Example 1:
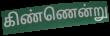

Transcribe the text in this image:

கிண்ணென்று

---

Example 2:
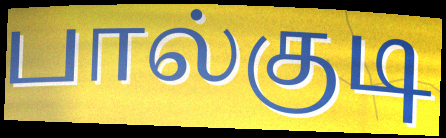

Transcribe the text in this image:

பால்குடி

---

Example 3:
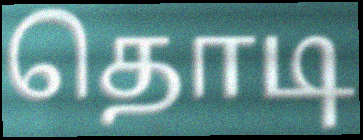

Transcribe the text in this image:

தொடி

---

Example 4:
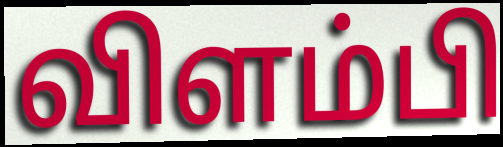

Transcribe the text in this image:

விளம்பி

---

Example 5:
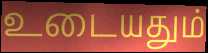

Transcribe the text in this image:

உடையதும்